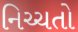
નિચ્ચતો